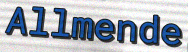
Allmende